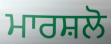
ਮਾਰਸ਼ਲੋ